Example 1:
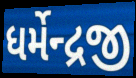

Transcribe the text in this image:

ધર્મેન્દ્રજી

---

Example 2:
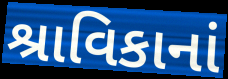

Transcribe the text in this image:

શ્રાવિકાનાં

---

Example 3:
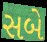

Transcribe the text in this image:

સબે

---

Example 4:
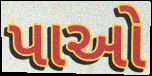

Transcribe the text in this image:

પાઓ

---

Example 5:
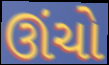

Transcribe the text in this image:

ઊંચો